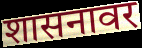
शासनावर